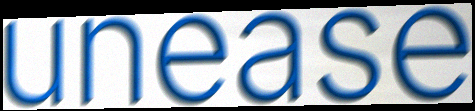
unease